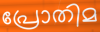
പ്രോതിമ